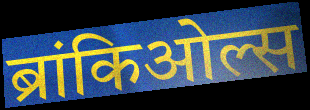
ब्रांकिओल्स